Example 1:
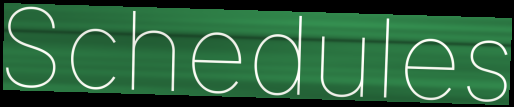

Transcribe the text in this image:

Schedules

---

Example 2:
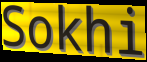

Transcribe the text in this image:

Sokhi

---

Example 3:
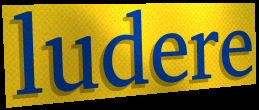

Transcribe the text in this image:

ludere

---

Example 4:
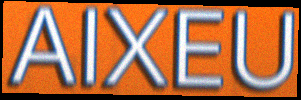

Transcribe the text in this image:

AIXEU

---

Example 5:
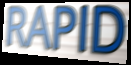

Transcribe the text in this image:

RAPID